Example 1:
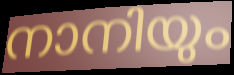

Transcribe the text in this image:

നാനിയും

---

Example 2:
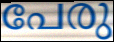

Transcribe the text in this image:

പേരു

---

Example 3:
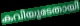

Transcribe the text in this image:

കവിയുടേതായി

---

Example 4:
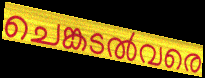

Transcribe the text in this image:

ചെങ്കടൽവരെ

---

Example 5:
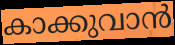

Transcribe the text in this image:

കാക്കുവാൻ